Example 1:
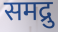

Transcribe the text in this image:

समद्रु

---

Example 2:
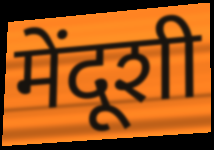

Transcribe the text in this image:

मेंदूशी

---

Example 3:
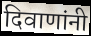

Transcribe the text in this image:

दिवाणांनी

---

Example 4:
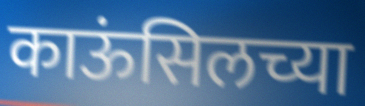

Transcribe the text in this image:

काऊंसिलच्या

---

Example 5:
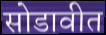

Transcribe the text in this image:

सोडावीत